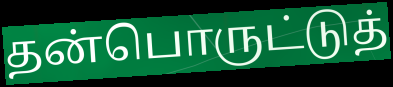
தன்பொருட்டுத்